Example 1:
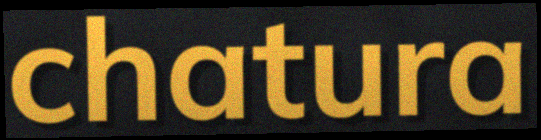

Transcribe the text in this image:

chatura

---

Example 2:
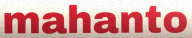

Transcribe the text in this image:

mahanto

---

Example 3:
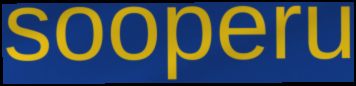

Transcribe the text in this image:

sooperu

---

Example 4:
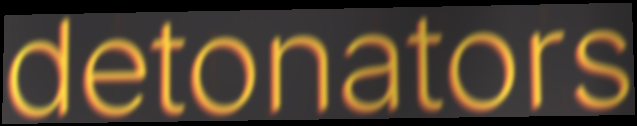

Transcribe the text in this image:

detonators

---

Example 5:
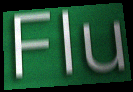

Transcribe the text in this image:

Flu